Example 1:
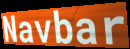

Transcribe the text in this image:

Navbar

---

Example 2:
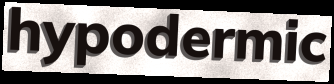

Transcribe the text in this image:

hypodermic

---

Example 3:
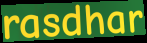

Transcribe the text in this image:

rasdhar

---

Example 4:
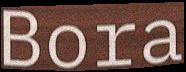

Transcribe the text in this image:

Bora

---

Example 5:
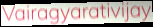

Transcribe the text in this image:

Vairagyarativijay